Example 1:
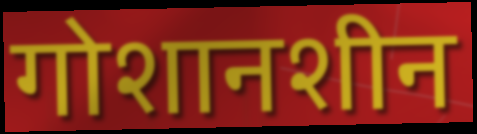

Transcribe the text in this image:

गोशानशीन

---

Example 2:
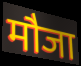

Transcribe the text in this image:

मौजा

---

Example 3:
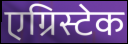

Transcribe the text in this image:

एग्रिस्टेक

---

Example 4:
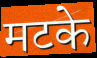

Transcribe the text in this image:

मटके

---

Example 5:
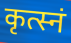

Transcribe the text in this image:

कृत्स्नं